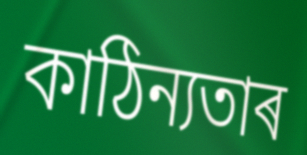
কাঠিন্যতাৰ